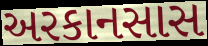
અરકાનસાસ